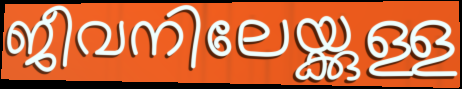
ജീവനിലേയ്ക്കുള്ള